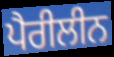
ਪੈਰੀਲੀਨ